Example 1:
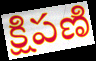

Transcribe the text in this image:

క్షిపణి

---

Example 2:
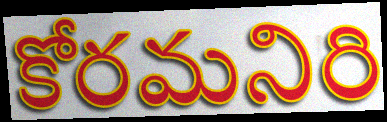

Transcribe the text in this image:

కోరమనిరి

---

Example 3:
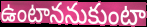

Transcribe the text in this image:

ఉంటాననుకుంటా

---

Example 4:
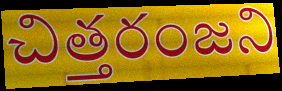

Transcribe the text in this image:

చిత్తరంజని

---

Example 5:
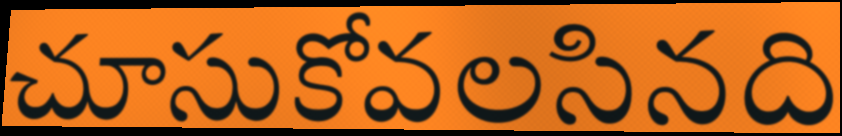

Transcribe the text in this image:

చూసుకోవలసినది